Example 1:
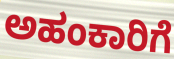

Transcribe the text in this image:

ಅಹಂಕಾರಿಗೆ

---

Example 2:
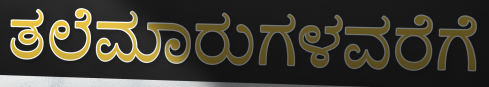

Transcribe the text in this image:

ತಲೆಮಾರುಗಳವರೆಗೆ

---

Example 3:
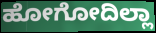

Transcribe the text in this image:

ಹೋಗೋದಿಲ್ಲಾ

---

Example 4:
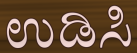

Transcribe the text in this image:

ಉಡಿಸಿ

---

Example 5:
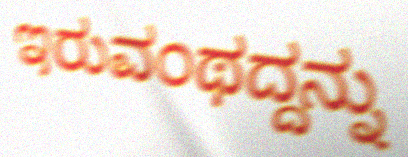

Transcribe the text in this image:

ಇರುವಂಥದ್ದನ್ನು